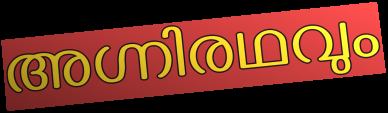
അഗ്നിരഥവും